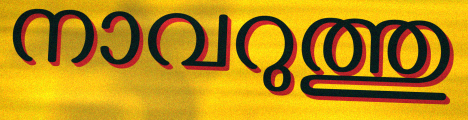
നാവറുത്തു